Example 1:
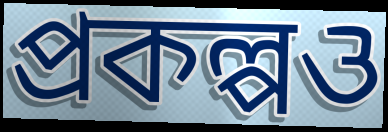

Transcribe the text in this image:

প্রকল্পও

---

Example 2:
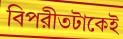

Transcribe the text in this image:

বিপরীতটাকেই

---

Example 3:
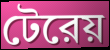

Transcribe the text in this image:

টেরেয়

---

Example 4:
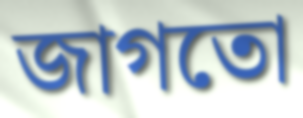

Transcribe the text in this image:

জাগতো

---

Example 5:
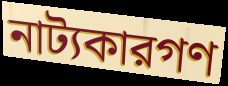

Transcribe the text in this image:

নাট্যকারগণ